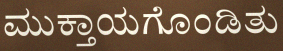
ಮುಕ್ತಾಯಗೊಂಡಿತು